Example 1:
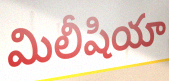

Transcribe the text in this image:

మిలీషియా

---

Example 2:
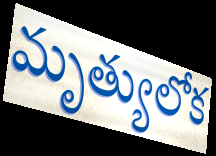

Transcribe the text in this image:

మృత్యులోక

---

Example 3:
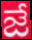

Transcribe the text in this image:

జే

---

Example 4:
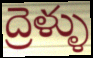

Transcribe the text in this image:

ద్రెళ్ళు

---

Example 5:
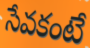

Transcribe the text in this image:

సేవకంటే